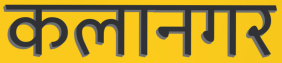
कलानगर